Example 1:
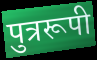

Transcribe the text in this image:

पुत्ररूपी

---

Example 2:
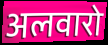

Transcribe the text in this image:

अलवारो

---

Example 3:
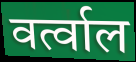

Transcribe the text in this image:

वर्त्वाल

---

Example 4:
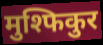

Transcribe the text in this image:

मुश्फिकुर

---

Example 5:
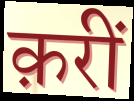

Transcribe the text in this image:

क़रीं